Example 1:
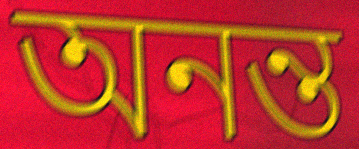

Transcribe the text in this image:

অনন্ত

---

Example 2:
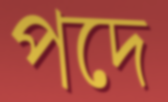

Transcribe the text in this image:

পদে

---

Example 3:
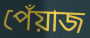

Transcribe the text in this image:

পেঁয়াজ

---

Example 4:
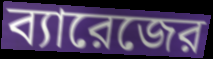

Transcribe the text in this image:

ব্যারেজের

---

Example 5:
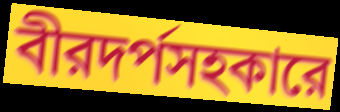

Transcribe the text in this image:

বীরদর্পসহকারে